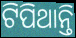
ଟିପିଥାନ୍ତି